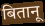
बितानू